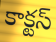
కాక్టస్